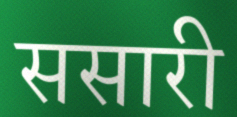
ससारी